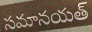
సమానయత్